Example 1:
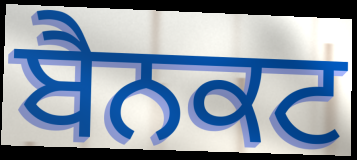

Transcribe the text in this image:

ਬੈਨਕਟ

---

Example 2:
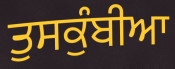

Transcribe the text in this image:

ਤੁਸਕੁੰਬੀਆ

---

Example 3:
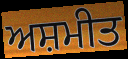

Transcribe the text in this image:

ਅਸ਼ਮੀਤ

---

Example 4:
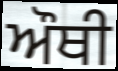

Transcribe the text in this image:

ਔਥੀ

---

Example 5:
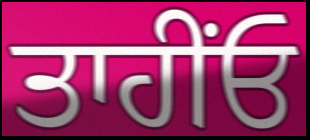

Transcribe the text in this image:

ਤਾਹੀਂਓ